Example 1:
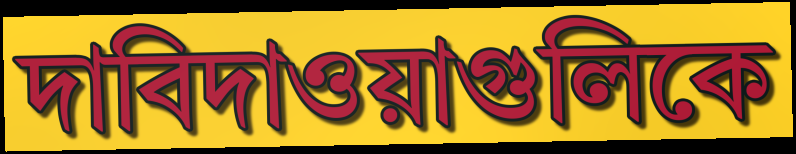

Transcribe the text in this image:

দাবিদাওয়াগুলিকে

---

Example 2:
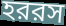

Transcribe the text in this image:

হররস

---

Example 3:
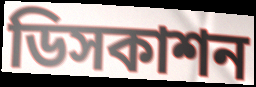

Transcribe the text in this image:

ডিসকাশন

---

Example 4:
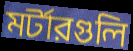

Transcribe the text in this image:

মর্টারগুলি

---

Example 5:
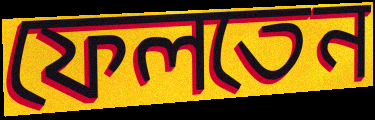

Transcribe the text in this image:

ফেলতেন